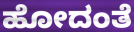
ಹೋದಂತೆ